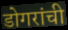
डोगरांची